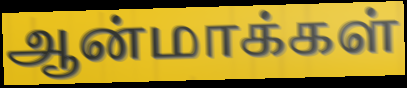
ஆன்மாக்கள்